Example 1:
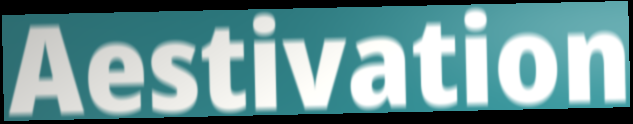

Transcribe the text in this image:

Aestivation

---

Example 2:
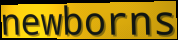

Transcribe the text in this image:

newborns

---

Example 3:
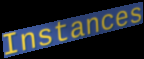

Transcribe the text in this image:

Instances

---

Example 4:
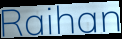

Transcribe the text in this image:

Raihan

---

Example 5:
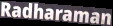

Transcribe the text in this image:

Radharaman